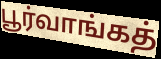
பூர்வாங்கத்